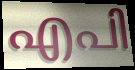
എപി